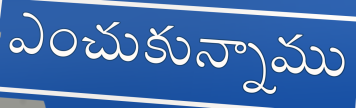
ఎంచుకున్నాము